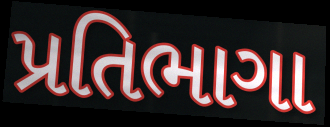
પ્રતિભાગા